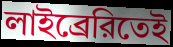
লাইব্রেরিতেই